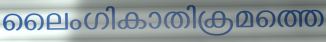
ലൈംഗികാതിക്രമത്തെ